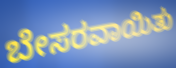
ಬೇಸರವಾಯಿತು